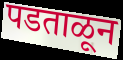
पडताळून